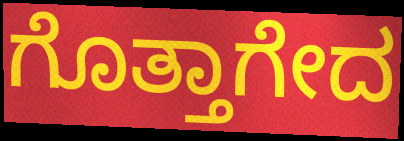
ಗೊತ್ತಾಗೇದ